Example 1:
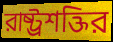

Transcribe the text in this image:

রাষ্ট্রশক্তির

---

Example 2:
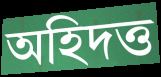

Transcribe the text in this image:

অহিদত্ত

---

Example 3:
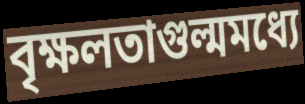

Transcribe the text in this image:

বৃক্ষলতাগুল্মমধ্যে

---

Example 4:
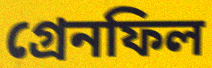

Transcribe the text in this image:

গ্রেনফিল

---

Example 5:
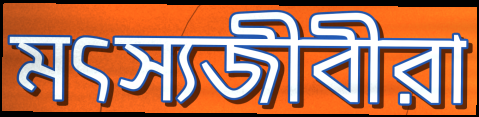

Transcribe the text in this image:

মৎস্যজীবীরা